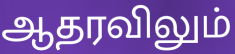
ஆதரவிலும்